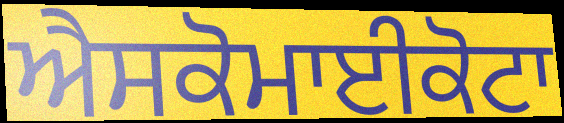
ਐਸਕੋਮਾਈਕੋਟਾ